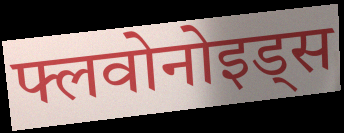
फ्लवोनोइड्स